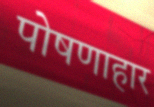
पोषणाहार